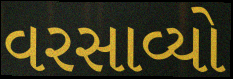
વરસાવ્યો